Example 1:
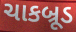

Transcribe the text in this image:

ચાકબ્રૂડ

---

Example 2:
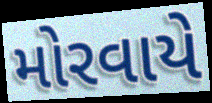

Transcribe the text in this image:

મોરવાયે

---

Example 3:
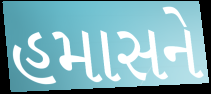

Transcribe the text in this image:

હમાસને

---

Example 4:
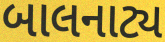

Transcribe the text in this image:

બાલનાટ્ય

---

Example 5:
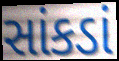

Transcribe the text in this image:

સાંકડાં